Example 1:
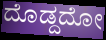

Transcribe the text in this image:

ದೊಡ್ದದೋ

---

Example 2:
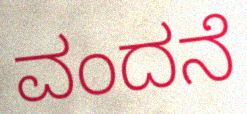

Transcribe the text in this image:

ವಂದನೆ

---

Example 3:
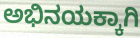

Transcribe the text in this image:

ಅಭಿನಯಕ್ಕಾಗಿ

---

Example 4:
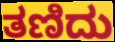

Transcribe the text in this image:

ತಣಿದು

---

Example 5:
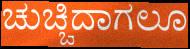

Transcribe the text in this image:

ಚುಚ್ಚಿದಾಗಲೂ